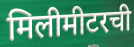
मिलीमीटरची